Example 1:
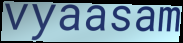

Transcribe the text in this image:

vyaasam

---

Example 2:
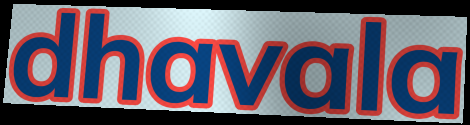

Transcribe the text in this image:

dhavala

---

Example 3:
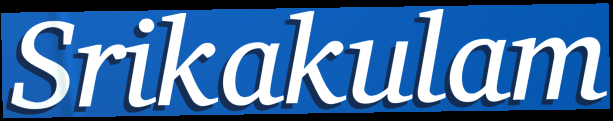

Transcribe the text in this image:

Srikakulam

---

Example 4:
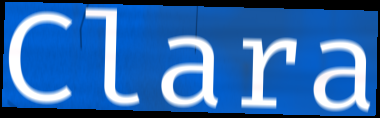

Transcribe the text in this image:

Clara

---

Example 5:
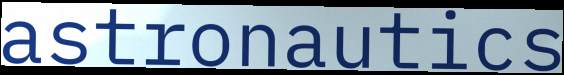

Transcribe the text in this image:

astronautics